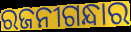
ରଜନୀଗନ୍ଧାର